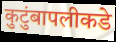
कुटुंबापलीकडे